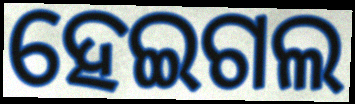
ହେଇଗଲ